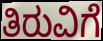
ತಿರುವಿಗೆ